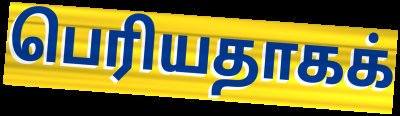
பெரியதாகக்